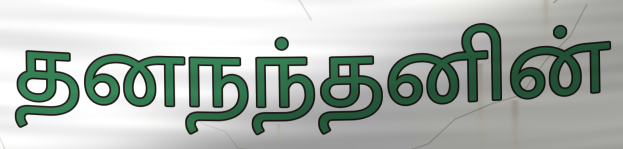
தனநந்தனின்